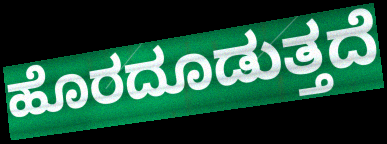
ಹೊರದೂಡುತ್ತದೆ